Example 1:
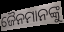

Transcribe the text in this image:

ଜୈନମାନଙ୍କୁ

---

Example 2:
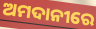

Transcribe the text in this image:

ଅମଦାନୀରେ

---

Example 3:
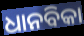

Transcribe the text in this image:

ଧାନବିକା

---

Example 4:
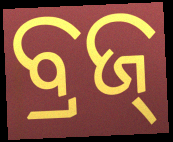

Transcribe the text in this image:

ବ୍ରଜ୍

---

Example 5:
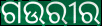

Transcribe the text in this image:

ଗଉରୀର